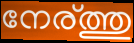
നേര്ത്തു